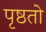
पृष्ठतो